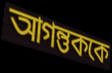
আগন্তুককে